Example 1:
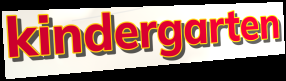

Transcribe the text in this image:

kindergarten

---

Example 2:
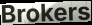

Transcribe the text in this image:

Brokers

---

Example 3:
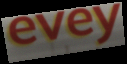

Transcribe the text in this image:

evey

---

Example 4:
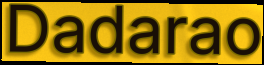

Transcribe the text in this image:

Dadarao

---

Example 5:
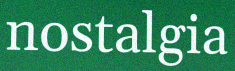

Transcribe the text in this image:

nostalgia